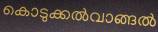
കൊടുക്കൽവാങ്ങൽ